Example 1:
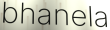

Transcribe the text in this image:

bhanela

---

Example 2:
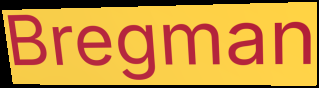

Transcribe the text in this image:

Bregman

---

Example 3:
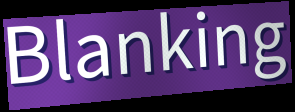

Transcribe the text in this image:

Blanking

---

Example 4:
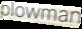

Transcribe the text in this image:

plowman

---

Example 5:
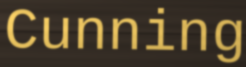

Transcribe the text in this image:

Cunning